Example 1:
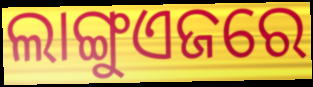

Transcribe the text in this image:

ଲାଙ୍ଗୁଏଜରେ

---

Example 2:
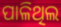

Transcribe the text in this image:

ପାଳିଥିଲ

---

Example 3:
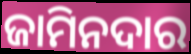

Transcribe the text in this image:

ଜାମିନଦାର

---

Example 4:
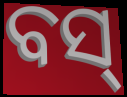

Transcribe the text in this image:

ବସ୍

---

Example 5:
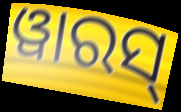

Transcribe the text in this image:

ୱାରସ୍